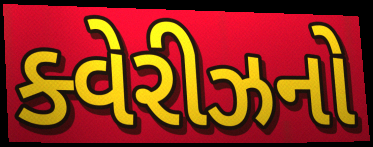
ક્વેરીઝનો